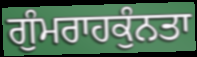
ਗੁੰਮਰਾਹਕੁੰਨਤਾ